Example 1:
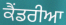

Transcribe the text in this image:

ਕੈਂਡਰੀਆ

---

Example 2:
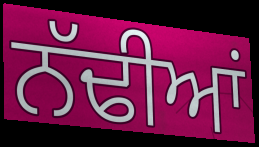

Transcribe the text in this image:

ਨੱਢੀਆਂ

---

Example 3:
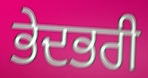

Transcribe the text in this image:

ਭੇਦਭਰੀ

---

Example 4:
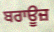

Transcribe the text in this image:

ਬਰਾਊਜ਼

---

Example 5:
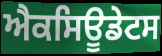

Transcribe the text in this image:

ਐਕਸਿਊਡੇਟਸ